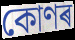
কোণৰ